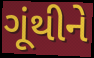
ગૂંથીને